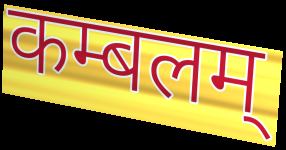
कम्बलम्